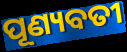
ପୂଣ୍ୟବତୀ